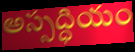
అస్సద్ధియం